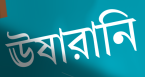
ঊষারানি